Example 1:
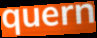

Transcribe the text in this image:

quern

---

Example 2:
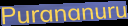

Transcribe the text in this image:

Purananuru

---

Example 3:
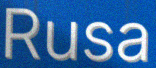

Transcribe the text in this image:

Rusa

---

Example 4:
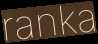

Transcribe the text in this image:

ranka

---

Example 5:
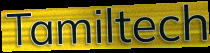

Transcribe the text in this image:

Tamiltech